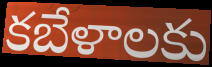
కబేళాలకు